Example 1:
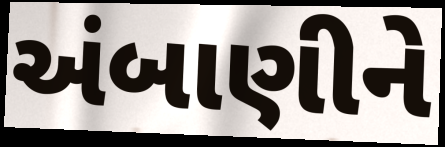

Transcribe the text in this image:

અંબાણીને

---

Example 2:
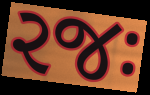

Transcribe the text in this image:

રજઃ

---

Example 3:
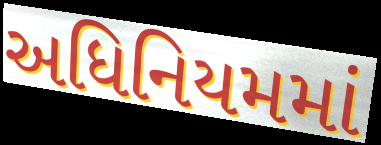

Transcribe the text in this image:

અધિનિયમમાં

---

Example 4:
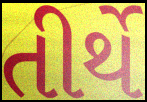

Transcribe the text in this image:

તીર્થે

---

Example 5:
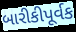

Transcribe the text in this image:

બારીકીપૂર્વક